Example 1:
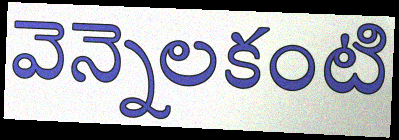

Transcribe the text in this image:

వెన్నెలకంటి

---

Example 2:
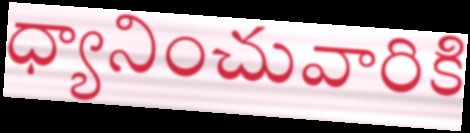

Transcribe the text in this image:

ధ్యానించువారికి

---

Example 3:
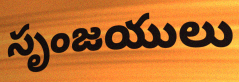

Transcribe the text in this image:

సృంజయులు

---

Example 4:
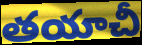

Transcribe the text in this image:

తయాచీ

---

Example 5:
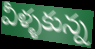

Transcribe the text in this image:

వీళ్ళకున్న